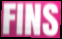
FINS